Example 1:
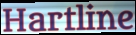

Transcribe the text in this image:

Hartline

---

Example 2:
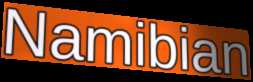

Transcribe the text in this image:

Namibian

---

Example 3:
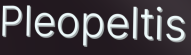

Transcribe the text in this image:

Pleopeltis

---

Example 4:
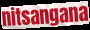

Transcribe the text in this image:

nitsangana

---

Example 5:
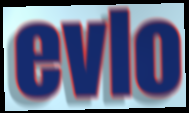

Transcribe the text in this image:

evlo